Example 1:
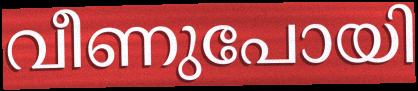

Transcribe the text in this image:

വീണുപോയി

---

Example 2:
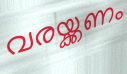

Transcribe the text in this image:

വരയ്ക്കണം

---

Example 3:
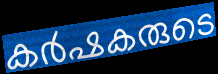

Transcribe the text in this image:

കർഷകരുടെ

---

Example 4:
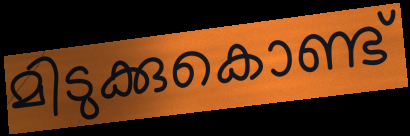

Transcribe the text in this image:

മിടുക്കുകൊണ്ട്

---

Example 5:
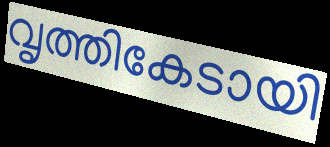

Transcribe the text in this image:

വൃത്തികേടായി